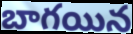
బాగయిన